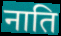
नाति